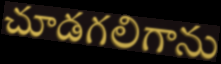
చూడగలిగాను